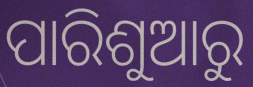
ପାରିଶୁଆରୁ